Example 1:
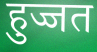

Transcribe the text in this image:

हुज्जत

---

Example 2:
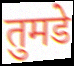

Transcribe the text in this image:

तुमडे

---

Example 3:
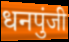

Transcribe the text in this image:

धनपुंजी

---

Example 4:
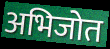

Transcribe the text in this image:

अभिजोत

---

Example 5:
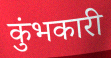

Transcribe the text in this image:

कुंभकारी